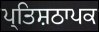
ਪ੍ਤਿਸ਼ਠਾਪਕ